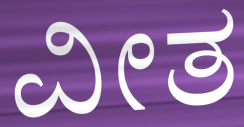
ವೀತ